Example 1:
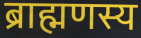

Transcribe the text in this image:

ब्राह्मणस्य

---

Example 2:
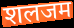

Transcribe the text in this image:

शलजम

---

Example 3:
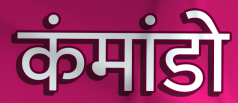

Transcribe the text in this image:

कंमांडो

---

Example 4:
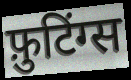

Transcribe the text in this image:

फ़ुटिंग्स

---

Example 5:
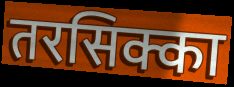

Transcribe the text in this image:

तरसिक्का